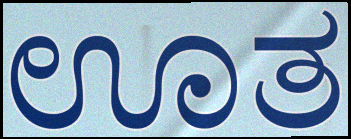
ಊತ